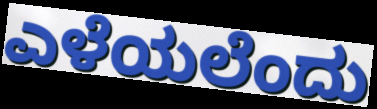
ಎಳೆಯಲೆಂದು